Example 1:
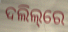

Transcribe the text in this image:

ଦଲିଲ୍‌ରେ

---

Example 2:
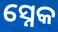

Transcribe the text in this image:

ସ୍ନେକ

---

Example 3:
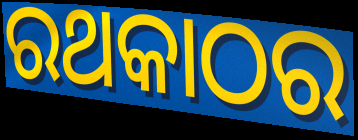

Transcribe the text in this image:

ରଥକାଠର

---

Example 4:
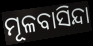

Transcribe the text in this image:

ମୂଳବାସିନ୍ଦା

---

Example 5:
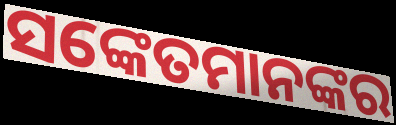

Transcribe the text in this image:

ସଙ୍କେତମାନଙ୍କର